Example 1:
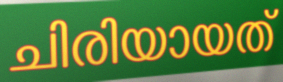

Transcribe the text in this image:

ചിരിയായത്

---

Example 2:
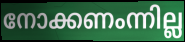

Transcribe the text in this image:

നോക്കണംന്നില്ല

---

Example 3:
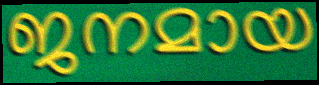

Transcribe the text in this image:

ജനമായ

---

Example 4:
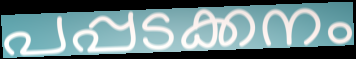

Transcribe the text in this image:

പപ്പടക്കനം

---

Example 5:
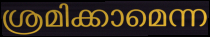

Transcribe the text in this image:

ശ്രമിക്കാമെന്ന